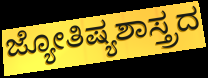
ಜ್ಯೋತಿಷ್ಯಶಾಸ್ತ್ರದ